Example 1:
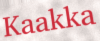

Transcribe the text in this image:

Kaakka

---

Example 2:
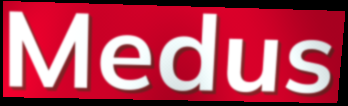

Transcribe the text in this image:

Medus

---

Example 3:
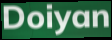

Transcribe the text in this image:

Doiyan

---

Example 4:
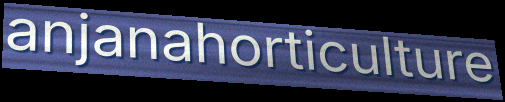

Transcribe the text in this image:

anjanahorticulture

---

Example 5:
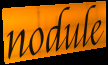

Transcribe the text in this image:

nodule